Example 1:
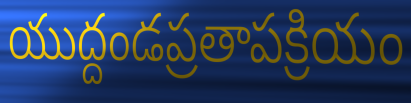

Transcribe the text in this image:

యుద్దండప్రతాపక్రియం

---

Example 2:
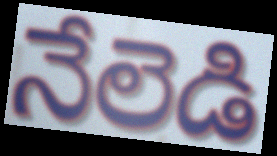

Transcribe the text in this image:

నేలెడి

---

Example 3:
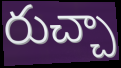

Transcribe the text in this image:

రుచ్చా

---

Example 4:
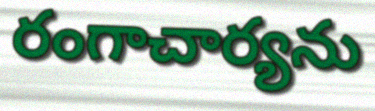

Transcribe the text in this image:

రంగాచార్యను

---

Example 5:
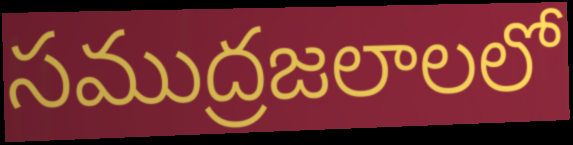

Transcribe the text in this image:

సముద్రజలాలలో